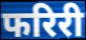
फरिरी